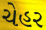
ચેહર